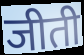
जीती